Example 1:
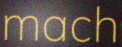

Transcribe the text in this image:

mach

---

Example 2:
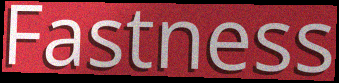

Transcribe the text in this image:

Fastness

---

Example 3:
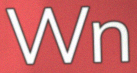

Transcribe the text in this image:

Wn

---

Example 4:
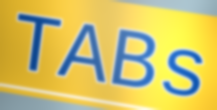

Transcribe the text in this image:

TABs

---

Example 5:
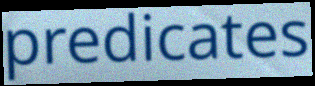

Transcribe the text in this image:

predicates